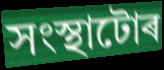
সংস্থাটোৰ